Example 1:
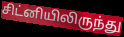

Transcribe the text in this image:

சிட்னியிலிருந்து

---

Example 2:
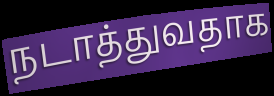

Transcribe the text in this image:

நடாத்துவதாக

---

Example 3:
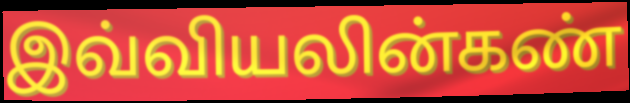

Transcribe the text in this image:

இவ்வியலின்கண்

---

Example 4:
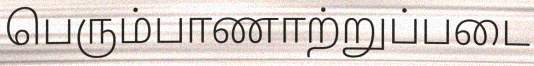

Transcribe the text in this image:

பெரும்பாணாற்றுப்படை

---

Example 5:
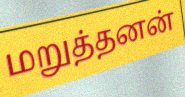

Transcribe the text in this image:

மறுத்தனன்